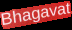
Bhagavat